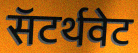
सॅटर्थवेट